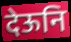
देऊनि